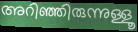
അറിഞ്ഞിരുന്നുള്ളൂ